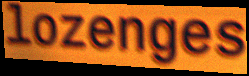
lozenges